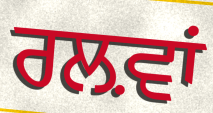
ਰਲ਼ਵਾਂ